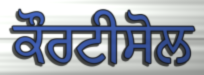
ਕੌਰਟੀਸੋਲ